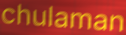
chulaman